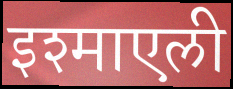
इश्माएली